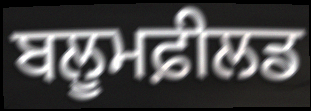
ਬਲੂਮਫ਼ੀਲਡ